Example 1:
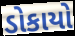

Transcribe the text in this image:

ડોકાયો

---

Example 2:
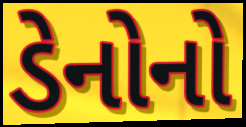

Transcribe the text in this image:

ડેનોનો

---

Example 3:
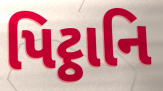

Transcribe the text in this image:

પિટ્ઠાનિ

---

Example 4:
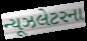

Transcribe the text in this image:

ન્યૂઝલેટરના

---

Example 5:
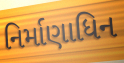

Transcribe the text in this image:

નિર્માણાધિન